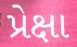
પ્રેક્ષા